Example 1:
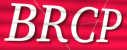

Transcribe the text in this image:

BRCP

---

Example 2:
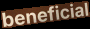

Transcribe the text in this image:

beneficial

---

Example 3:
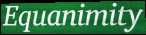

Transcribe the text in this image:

Equanimity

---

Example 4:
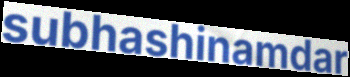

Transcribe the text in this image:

subhashinamdar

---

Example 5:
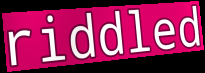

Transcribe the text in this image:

riddled